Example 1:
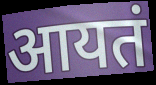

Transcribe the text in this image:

आयतं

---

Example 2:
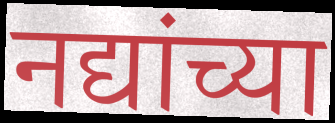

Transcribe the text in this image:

नद्यांच्या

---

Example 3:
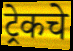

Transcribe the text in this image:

ट्रेकचे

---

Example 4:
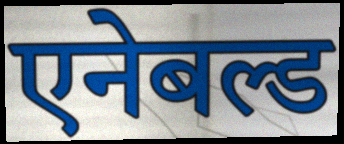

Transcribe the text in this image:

एनेबल्ड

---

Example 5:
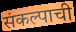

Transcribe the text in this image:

संकल्पाची